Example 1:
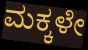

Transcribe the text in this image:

ಮಕ್ಕಳೇ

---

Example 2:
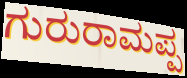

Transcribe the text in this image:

ಗುರುರಾಮಪ್ಪ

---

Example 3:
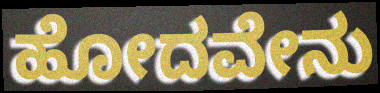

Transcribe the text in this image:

ಹೋದವೇನು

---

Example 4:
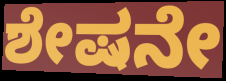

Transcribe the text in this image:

ಶೇಷನೇ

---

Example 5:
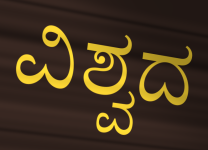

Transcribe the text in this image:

ವಿಶ್ವದ